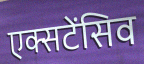
एक्सटेंसिव